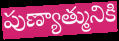
పుణ్యాత్మునికి